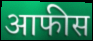
आफीस